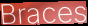
Braces